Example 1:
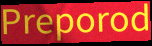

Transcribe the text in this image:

Preporod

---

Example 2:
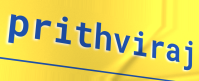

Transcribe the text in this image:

prithviraj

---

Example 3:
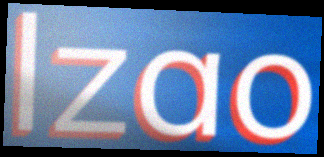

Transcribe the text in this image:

Izao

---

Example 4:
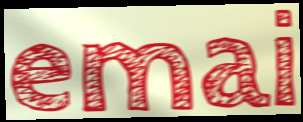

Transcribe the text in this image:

emai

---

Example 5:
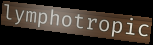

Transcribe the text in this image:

lymphotropic